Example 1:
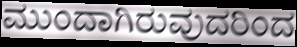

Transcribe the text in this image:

ಮುಂದಾಗಿರುವುದರಿಂದ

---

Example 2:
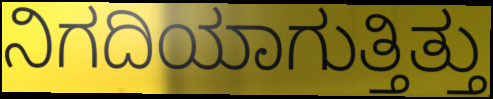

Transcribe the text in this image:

ನಿಗದಿಯಾಗುತ್ತಿತ್ತು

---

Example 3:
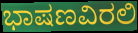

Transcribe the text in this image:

ಭಾಷಣವಿರಲಿ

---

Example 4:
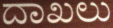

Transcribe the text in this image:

ದಾಖಲು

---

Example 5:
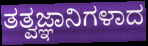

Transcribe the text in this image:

ತತ್ವಜ್ಞಾನಿಗಳಾದ